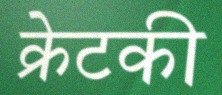
क्रेटकी